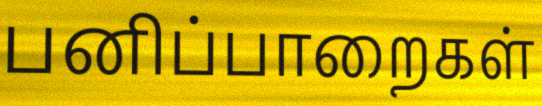
பனிப்பாறைகள்